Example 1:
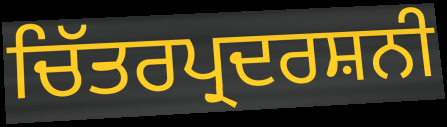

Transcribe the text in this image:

ਚਿੱਤਰਪ੍ਰਦਰਸ਼ਨੀ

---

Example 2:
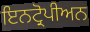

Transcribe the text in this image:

ਇਨਟ੍ਰੋਪੀਅਨ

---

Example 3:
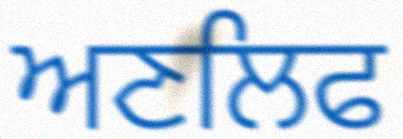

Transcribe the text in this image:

ਅਣਲਿਫ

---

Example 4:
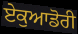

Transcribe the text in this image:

ਏਕੁਆਡੋਰੀ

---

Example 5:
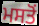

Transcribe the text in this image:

ਮਸਤੋਂ